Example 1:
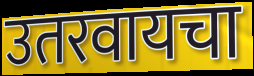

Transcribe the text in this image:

उतरवायचा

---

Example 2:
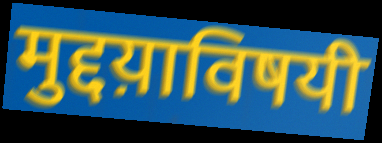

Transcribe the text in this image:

मुद्दय़ाविषयी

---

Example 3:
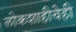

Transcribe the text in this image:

लोकशाहीचेही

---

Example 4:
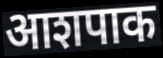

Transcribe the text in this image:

आशपाक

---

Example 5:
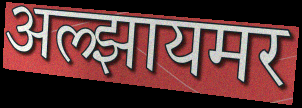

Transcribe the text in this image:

अल्झायमर